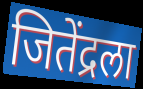
जितेंद्रला